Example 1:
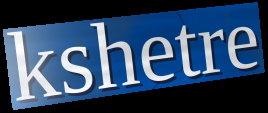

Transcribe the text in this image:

kshetre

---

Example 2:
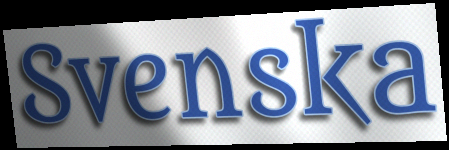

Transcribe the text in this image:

Svenska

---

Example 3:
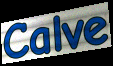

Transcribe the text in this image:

Calve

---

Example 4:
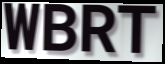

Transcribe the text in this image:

WBRT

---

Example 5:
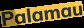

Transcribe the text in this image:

Palamau